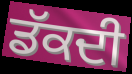
ਡੱਕਦੀ